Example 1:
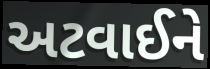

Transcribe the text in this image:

અટવાઈને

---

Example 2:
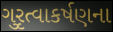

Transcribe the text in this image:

ગુરૃત્વાકર્ષણના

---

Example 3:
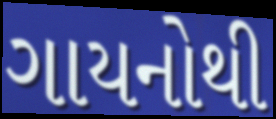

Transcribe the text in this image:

ગાયનોથી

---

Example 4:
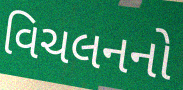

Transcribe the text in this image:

વિચલનનો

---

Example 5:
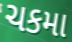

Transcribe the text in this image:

ચકમા